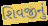
શિવજીનું